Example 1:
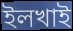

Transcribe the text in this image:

ইলখাই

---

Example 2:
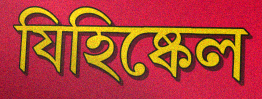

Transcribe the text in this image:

যিহিষ্কেল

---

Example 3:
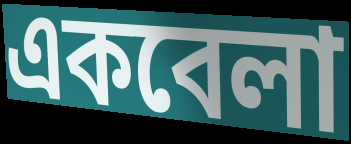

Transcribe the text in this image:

একবেলা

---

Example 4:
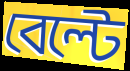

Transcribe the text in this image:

বেল্টে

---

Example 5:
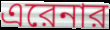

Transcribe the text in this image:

এরেনার